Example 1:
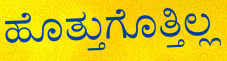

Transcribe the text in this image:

ಹೊತ್ತುಗೊತ್ತಿಲ್ಲ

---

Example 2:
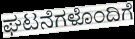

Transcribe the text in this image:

ಘಟನೆಗಳೊಂದಿಗೆ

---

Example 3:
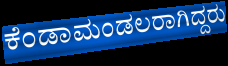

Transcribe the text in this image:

ಕೆಂಡಾಮಂಡಲರಾಗಿದ್ದರು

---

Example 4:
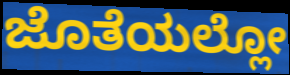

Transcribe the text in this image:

ಜೊತೆಯಲ್ಲೋ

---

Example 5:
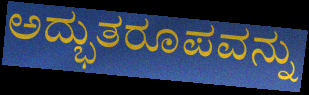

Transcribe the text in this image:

ಅದ್ಭುತರೂಪವನ್ನು